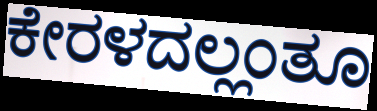
ಕೇರಳದಲ್ಲಂತೂ